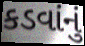
કડવાંનું